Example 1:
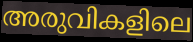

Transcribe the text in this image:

അരുവികളിലെ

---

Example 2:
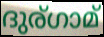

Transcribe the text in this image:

ദുര്ഗാമ്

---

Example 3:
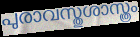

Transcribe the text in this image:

പുരാവസ്തുശാസ്ത്രം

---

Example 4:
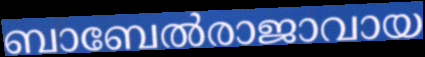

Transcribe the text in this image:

ബാബേൽരാജാവായ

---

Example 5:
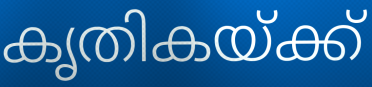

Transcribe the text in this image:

കൃതികയ്ക്ക്